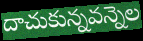
దాచుకున్నవన్నెల